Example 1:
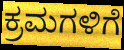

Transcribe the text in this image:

ಕ್ರಮಗಳಿಗೆ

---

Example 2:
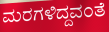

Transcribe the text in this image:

ಮರಗಳಿದ್ದವಂತೆ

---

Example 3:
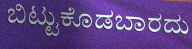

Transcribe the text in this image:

ಬಿಟ್ಟುಕೊಡಬಾರದು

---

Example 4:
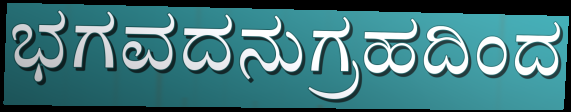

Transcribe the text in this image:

ಭಗವದನುಗ್ರಹದಿಂದ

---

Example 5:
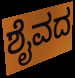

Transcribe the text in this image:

ಶೈವದ